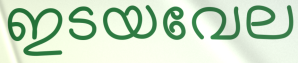
ഇടയവേല